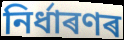
নিৰ্ধাৰণৰ